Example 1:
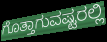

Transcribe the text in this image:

ಗೊತ್ತಾಗುವಷ್ಟರಲ್ಲಿ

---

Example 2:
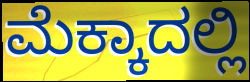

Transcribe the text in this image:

ಮೆಕ್ಕಾದಲ್ಲಿ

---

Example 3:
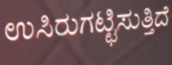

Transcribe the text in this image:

ಉಸಿರುಗಟ್ಟಿಸುತ್ತಿದೆ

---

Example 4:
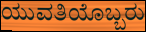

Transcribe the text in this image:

ಯುವತಿಯೊಬ್ಬರು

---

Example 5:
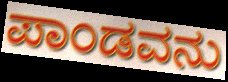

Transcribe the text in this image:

ಪಾಂಡವನು